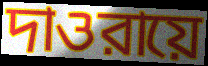
দাওরায়ে